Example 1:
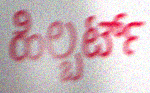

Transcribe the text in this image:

ಹಿಲ್ಬರ್ಟ್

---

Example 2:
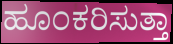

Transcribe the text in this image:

ಹೂಂಕರಿಸುತ್ತಾ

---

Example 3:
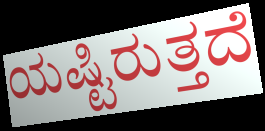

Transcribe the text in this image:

ಯಷ್ಟಿರುತ್ತದೆ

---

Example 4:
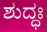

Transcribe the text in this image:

ಶುದ್ಧಃ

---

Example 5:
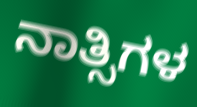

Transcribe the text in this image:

ನಾತ್ಸಿಗಳ